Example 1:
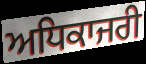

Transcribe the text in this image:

ਅਧਿਕਾਜਰੀ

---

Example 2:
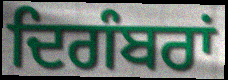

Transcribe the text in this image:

ਦਿਗੰਬਰਾਂ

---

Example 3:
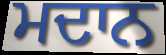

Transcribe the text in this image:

ਮਦਾਨ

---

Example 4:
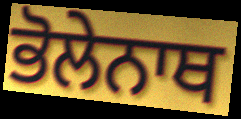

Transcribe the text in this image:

ਭੋਲੇਨਾਥ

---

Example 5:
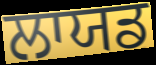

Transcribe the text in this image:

ਲਾਯਡ